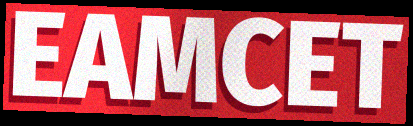
EAMCET